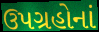
ઉપગ્રહોનાં